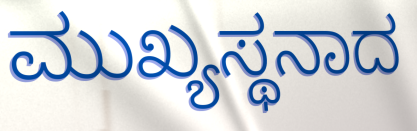
ಮುಖ್ಯಸ್ಥನಾದ